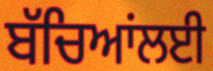
ਬੱਚਿਆਂਲਈ